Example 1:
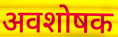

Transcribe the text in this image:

अवशोषक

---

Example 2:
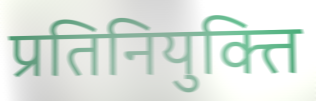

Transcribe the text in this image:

प्रतिनियुक्ति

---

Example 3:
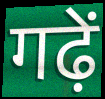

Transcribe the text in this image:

गढ़ें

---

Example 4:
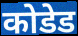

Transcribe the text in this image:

कोडेड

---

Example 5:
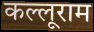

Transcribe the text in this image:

कल्लूराम